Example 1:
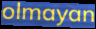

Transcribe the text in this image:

olmayan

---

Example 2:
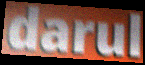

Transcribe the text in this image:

darul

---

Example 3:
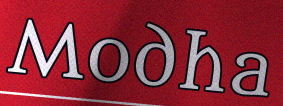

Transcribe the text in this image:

Modha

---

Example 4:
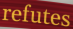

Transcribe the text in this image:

refutes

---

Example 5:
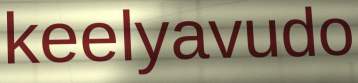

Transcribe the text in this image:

keelyavudo